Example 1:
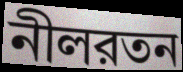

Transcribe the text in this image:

নীলরতন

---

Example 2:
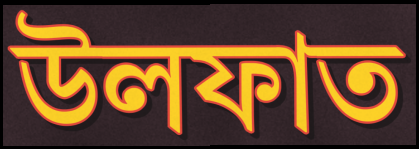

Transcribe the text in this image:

উলফাত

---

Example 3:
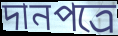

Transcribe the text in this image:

দানপত্রে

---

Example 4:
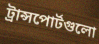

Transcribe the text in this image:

ট্রান্সপোর্টগুলো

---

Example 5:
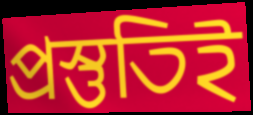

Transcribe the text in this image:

প্রস্তুতিই